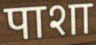
पाशा